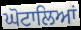
ਘੋਟਾਲਿਆਂ